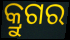
କ୍ରୁଗର